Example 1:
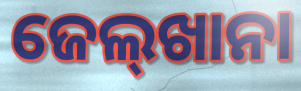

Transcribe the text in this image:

ଜେଲ୍‌ଖାନା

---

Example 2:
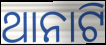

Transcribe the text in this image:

ଥାନାଟି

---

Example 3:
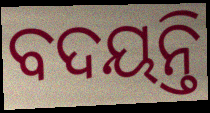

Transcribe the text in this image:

ବଦୟନ୍ତି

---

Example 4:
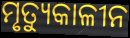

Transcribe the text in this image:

ମୃତ୍ୟୁକାଳୀନ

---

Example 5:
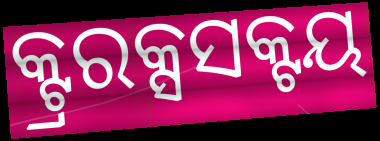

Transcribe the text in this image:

କ୍ଟ୍ରରକ୍ସସକ୍ଟୟ